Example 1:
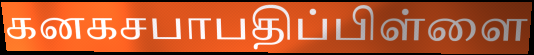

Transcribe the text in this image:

கனகசபாபதிப்பிள்ளை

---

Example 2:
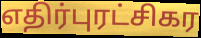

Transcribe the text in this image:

எதிர்புரட்சிகர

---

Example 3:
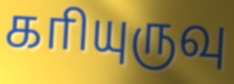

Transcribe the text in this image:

கரியுருவு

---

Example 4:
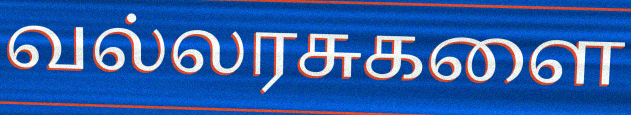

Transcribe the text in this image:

வல்லரசுகளை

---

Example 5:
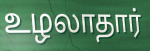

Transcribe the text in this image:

உழலாதார்